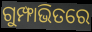
ଗୁମ୍ଫାଭିତରେ